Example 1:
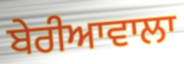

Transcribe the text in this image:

ਬੇਰੀਆਵਾਲਾ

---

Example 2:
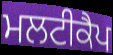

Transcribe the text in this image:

ਮਲਟੀਕੈਪ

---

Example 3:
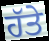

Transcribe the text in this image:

ਹੱਤੇ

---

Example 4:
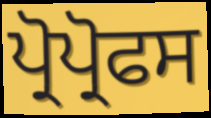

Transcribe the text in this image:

ਪ੍ਰੋਪ੍ਰੋਫਸ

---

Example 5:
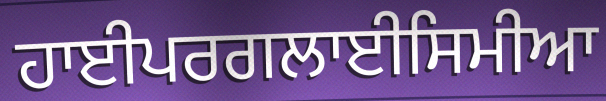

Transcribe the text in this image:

ਹਾਈਪਰਗਲਾਈਸਿਮੀਆ